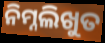
ନିମ୍ନଲିଖୁତ